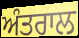
ਅੰਤਰਾਲ